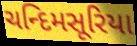
ચન્દિમસૂરિયા